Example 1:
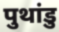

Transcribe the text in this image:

पुथांडु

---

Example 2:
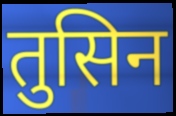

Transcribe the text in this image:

तुसिन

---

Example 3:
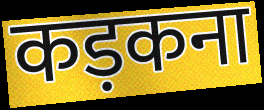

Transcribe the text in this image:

कड़कना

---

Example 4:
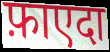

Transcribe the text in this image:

फ़ाएदा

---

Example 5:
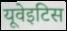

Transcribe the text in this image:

यूवेइटिस